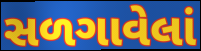
સળગાવેલાં